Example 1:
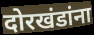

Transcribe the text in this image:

दोरखंडांना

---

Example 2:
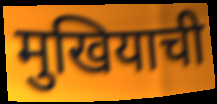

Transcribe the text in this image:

मुखियाची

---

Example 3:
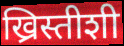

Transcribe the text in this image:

ख्रिस्तीशी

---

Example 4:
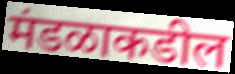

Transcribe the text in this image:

मंडळाकडील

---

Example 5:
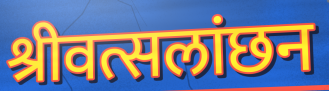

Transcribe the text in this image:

श्रीवत्सलांछन